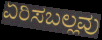
ಏರಿಸಬಲ್ಲವು